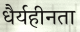
धैर्यहीनता